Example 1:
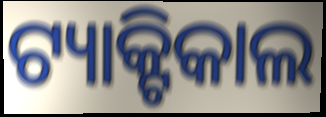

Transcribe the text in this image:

ଟ୍ୟାକ୍ଟିକାଲ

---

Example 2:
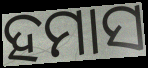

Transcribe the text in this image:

ହମାସ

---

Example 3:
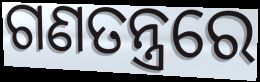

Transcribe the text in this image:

ଗଣତନ୍ତ୍ରରେ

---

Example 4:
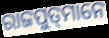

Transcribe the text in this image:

ରାଜପୁତ୍‍ମାନେ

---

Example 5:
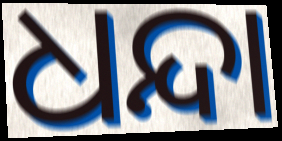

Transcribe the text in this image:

ଧନ୍ଦା